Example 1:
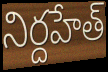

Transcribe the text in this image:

నిర్దహేత్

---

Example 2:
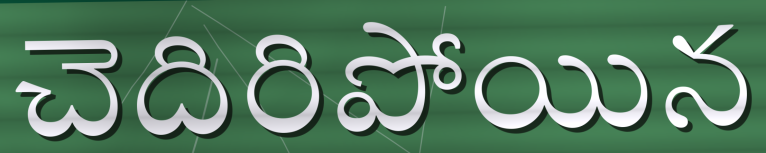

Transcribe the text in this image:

చెదిరిపోయిన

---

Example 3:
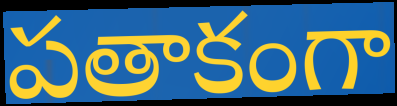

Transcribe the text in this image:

పతాకంగా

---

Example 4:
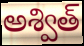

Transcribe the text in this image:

అశ్విత్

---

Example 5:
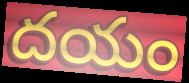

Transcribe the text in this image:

దయం